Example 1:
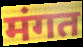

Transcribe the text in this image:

मंगत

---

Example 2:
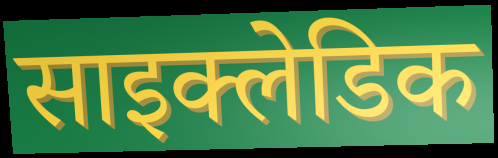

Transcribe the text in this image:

साइक्लेडिक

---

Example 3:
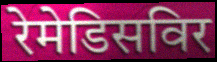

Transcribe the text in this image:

रेमेडिसविर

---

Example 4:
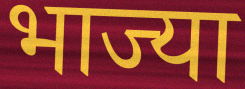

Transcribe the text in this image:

भाज्या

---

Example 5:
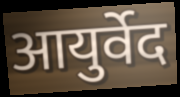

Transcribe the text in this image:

आयुर्वेद